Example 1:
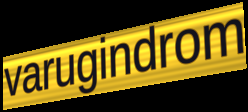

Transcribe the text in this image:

varugindrom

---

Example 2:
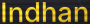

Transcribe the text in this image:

Indhan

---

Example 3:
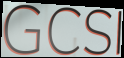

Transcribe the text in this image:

GCSI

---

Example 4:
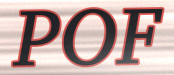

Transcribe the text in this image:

POF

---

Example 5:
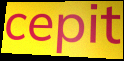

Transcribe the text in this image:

cepit